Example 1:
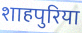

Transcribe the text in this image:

शाहपुरिया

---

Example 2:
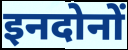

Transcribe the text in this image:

इनदोनों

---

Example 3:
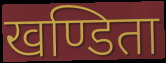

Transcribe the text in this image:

खण्डिता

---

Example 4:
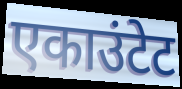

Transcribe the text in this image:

एकाउंटेट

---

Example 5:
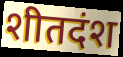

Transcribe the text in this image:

शीतदंश